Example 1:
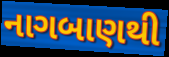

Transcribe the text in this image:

નાગબાણથી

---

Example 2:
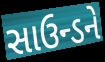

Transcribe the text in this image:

સાઉન્ડને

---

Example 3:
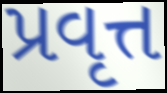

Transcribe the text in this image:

પ્રવૃત્ત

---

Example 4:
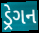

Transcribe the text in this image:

ડ્રેગન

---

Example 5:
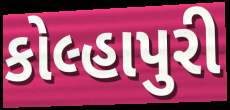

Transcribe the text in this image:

કોલ્હાપુરી